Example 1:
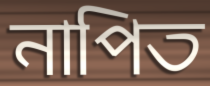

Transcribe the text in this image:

নাপিত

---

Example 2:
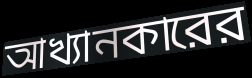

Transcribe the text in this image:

আখ্যানকারের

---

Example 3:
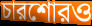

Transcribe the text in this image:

চারশোরও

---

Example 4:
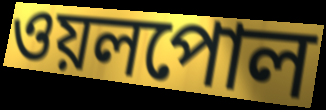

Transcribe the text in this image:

ওয়লপোল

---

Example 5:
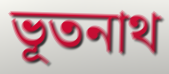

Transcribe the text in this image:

ভূতনাথ